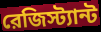
রেজিস্ট্যান্ট